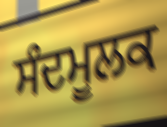
ਸੰਦਮੂਲਕ